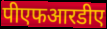
पीएफआरडीए